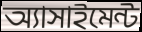
অ্যাসাইমেন্ট